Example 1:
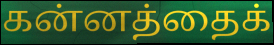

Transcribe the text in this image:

கன்னத்தைக்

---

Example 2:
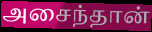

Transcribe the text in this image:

அசைந்தான்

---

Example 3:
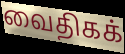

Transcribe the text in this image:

வைதிகக்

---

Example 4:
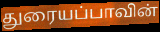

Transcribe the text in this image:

துரையப்பாவின்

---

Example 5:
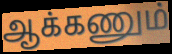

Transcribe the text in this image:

ஆக்கணும்